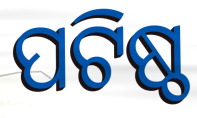
ପଟିଷ୍ଠ